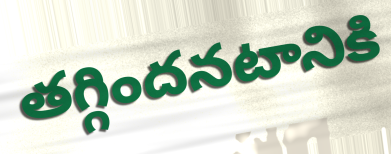
తగ్గిందనటానికి